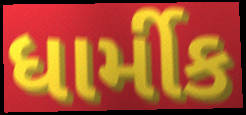
ધાર્મીક